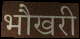
भौखरी